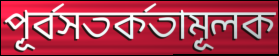
পূর্বসতর্কতামূলক